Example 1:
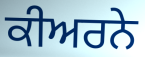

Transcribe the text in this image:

ਕੀਅਰਨੇ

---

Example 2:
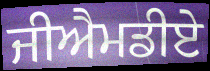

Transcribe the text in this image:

ਜੀਐਮਡੀਏ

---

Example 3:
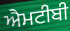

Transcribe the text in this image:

ਐਮਟੀਬੀ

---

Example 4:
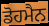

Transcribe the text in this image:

ਡੋਹਮੈਨ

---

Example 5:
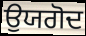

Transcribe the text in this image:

ਉਯਗੋਦ